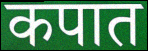
कपात